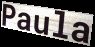
Paula